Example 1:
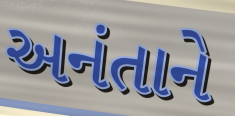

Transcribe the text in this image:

અનંતાને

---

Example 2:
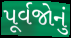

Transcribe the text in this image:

પૂર્વજોનું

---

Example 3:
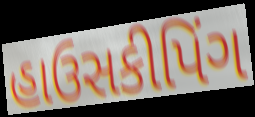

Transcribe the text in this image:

હાઉસકીપિંગ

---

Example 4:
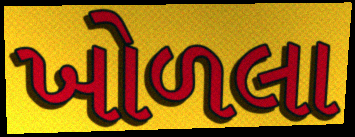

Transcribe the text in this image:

ખોળલા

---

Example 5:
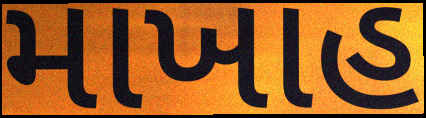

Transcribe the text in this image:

માખાહ